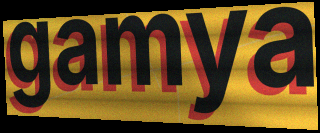
gamya